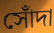
সোঁদা